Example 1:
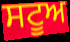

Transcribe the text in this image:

ਸਟੂਅ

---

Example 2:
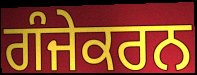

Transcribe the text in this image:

ਗੰਜੇਕਰਨ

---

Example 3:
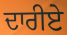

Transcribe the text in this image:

ਦਾਰੀਏ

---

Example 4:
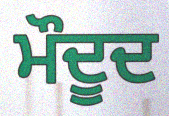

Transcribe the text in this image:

ਮੌਦੂਦ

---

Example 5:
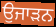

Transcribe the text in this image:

ਉਜਾੜਨ